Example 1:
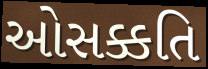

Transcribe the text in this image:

ઓસક્કતિ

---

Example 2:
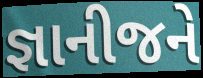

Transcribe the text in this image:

જ્ઞાનીજને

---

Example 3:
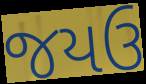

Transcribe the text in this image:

જયઉ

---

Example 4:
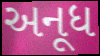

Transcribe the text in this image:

અનૂધ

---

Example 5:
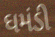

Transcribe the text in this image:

ઘમંડી